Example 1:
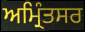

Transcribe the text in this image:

ਅਮ੍ਰਿੰਤਸਰ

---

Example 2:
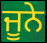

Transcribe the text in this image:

ਜੂਨੇ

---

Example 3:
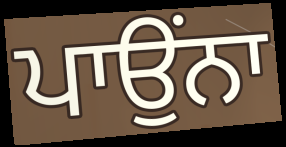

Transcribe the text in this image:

ਪਾਉਂਨਾ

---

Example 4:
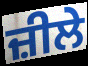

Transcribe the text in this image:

ਜ਼ੀਲੇ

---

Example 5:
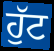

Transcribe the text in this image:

ਹੁੱਟ